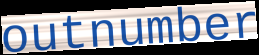
outnumber